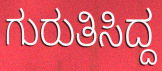
ಗುರುತಿಸಿದ್ದ